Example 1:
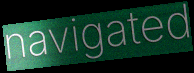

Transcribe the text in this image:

navigated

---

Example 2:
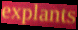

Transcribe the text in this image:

explants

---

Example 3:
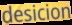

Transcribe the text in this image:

desicion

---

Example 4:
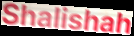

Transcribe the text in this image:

Shalishah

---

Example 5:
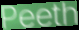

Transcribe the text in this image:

Peeth